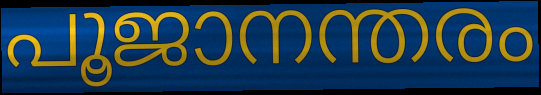
പൂജാനന്തരം